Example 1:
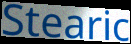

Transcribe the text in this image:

Stearic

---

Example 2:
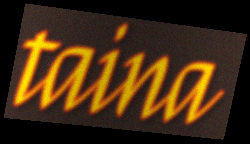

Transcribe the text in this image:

taina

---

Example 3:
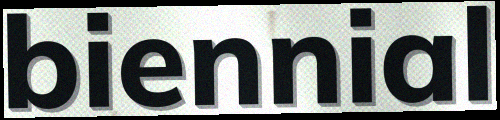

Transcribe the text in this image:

biennial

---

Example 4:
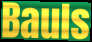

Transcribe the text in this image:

Bauls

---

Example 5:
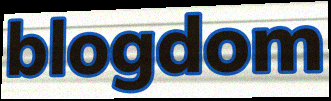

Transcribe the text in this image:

blogdom